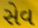
સેવ